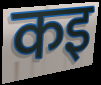
कइ